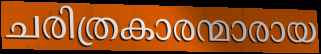
ചരിത്രകാരന്മാരായ